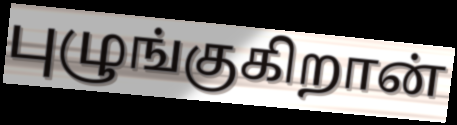
புழுங்குகிறான்